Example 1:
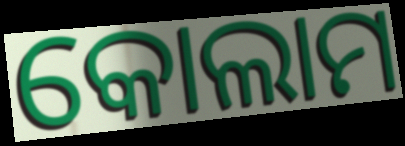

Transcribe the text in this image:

କୋଲାମ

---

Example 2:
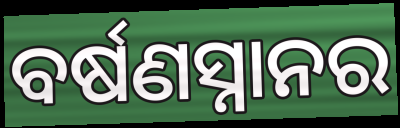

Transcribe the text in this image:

ବର୍ଷଣସ୍ନାନର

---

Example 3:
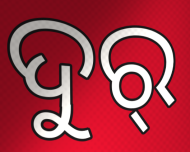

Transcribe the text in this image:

ଦୁର୍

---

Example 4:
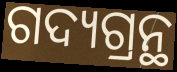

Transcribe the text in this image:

ଗଦ୍ୟଗ୍ରନ୍ଥ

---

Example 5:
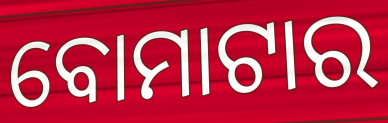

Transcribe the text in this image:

ବୋମାଟାର